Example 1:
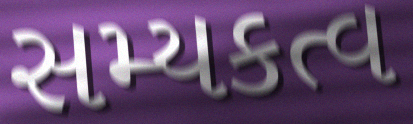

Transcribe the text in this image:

સમ્યકત્વ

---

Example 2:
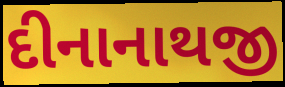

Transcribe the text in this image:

દીનાનાથજી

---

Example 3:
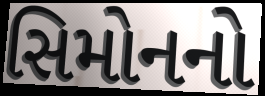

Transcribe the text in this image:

સિમોનનો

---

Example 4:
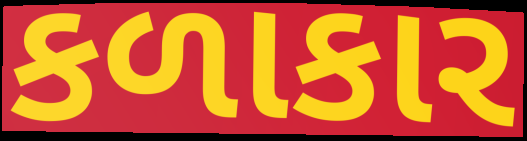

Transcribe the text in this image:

કળાકાર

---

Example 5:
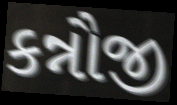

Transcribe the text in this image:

કન્નૌજી